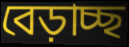
বেড়াচ্ছ